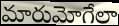
మారుమోగేలా